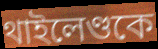
থাইলেণ্ডকে